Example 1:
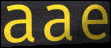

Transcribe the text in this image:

aae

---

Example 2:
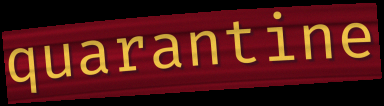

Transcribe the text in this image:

quarantine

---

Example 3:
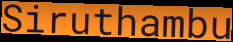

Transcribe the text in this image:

Siruthambu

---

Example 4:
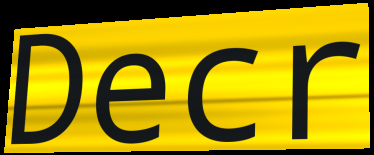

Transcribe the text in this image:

Decr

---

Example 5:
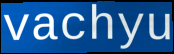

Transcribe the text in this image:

vachyu